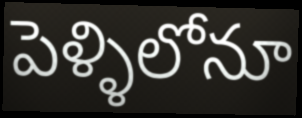
పెళ్ళిలోనూ